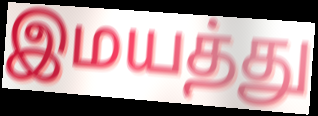
இமயத்து